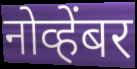
नोव्हेंबर